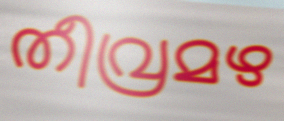
തീവ്രമഴ